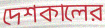
দেশকালের